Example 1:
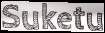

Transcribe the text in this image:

Suketu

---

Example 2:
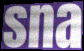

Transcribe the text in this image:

sna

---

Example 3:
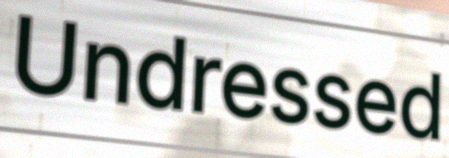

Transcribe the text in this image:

Undressed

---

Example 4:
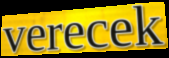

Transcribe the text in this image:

verecek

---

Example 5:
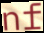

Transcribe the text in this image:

nf